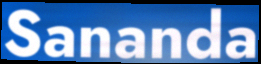
Sananda